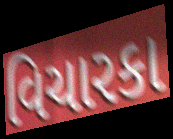
વિચારકા